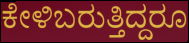
ಕೇಳಿಬರುತ್ತಿದ್ದರೂ